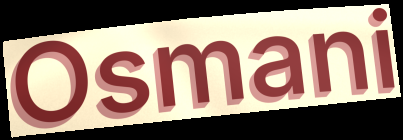
Osmani